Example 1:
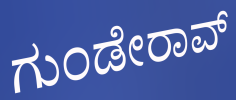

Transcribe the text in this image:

ಗುಂಡೇರಾವ್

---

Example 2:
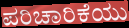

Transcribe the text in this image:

ಪರಿಚಾರಿಕೆಯು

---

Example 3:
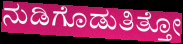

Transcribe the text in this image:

ನುಡಿಗೊಡುತಿತ್ತೋ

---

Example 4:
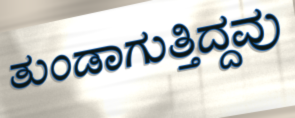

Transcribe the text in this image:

ತುಂಡಾಗುತ್ತಿದ್ದವು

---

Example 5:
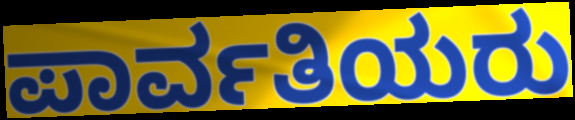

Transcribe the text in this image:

ಪಾರ್ವತಿಯರು